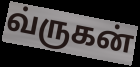
வ்ருகன்